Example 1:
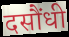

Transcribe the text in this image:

दसौंधी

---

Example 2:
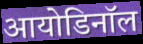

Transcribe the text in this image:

आयोडिनॉल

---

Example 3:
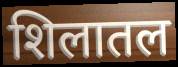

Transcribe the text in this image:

शिलातल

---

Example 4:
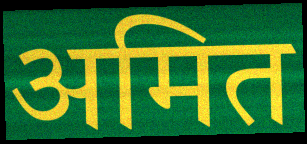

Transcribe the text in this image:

अमित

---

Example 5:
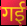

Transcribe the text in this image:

गई